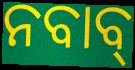
ନବାବ୍